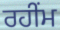
ਰਹੀਂਮ